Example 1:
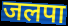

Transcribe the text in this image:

जलपा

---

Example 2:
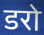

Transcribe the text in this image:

डरो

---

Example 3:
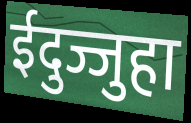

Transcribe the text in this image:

ईदुज्जुहा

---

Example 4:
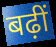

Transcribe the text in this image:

बढ़ीं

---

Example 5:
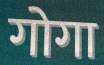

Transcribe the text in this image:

गोगा